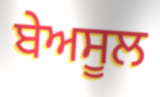
ਬੇਅਸੂਲ